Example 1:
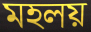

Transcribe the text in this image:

মহলয়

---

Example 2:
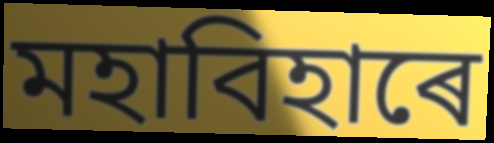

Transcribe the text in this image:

মহাবিহাৰে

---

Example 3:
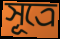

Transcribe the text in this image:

সূত্ৰে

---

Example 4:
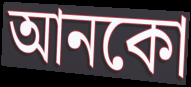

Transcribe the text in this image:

আনকো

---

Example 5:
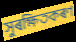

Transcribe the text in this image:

সুৰক্ষিতকৰণ